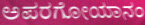
ಅಪರಗೋಯಾನಂ